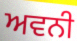
ਅਵਨੀ